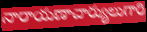
నారాయణాచార్యులుగారి